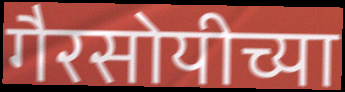
गैरसोयीच्या